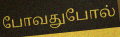
போவதுபோல்